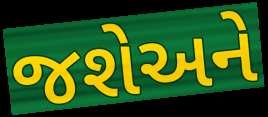
જશેઅને